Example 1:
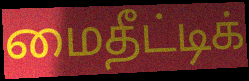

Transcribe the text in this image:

மைதீட்டிக்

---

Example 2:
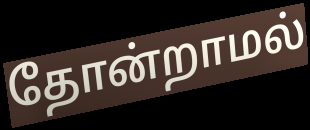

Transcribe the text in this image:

தோன்றாமல்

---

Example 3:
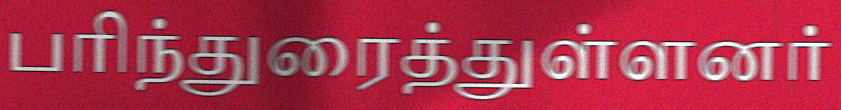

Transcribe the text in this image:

பரிந்துரைத்துள்ளனர்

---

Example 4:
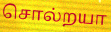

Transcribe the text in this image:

சொல்றயா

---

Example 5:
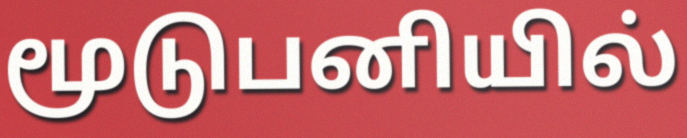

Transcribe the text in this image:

மூடுபனியில்